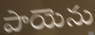
పాయెను